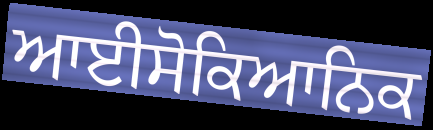
ਆਈਸੋਕਿਆਨਿਕ